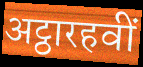
अट्ठारहवीं